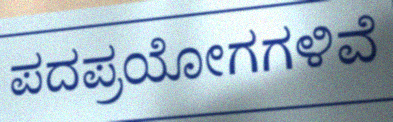
ಪದಪ್ರಯೋಗಗಳಿವೆ